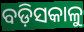
ବଡ଼ିସକାଳୁ